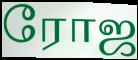
ரோஜ